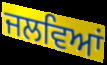
ਜਲਵਿਆਂ